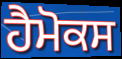
ਹੈਮੋਕਸ